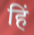
हिं